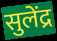
सुलेंद्र